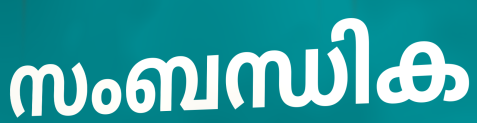
സംബന്ധിക